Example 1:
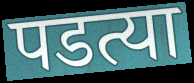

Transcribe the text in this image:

पडत्या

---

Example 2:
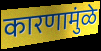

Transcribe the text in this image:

कारणामुंळे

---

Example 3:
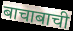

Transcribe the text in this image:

बाचाबाची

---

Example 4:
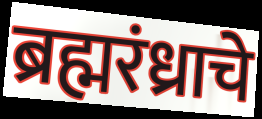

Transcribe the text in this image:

ब्रह्मरंध्राचे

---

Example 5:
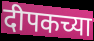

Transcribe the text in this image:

दीपकच्या